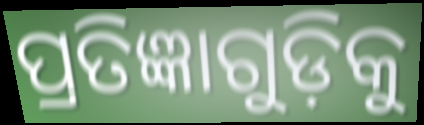
ପ୍ରତିଜ୍ଞାଗୁଡ଼ିକୁ